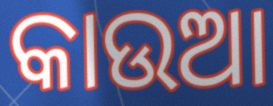
କାଉଆ